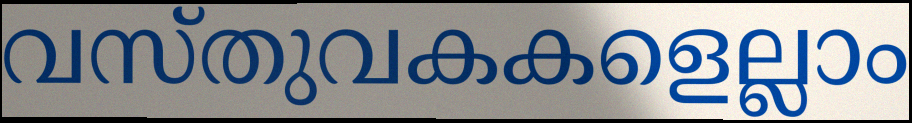
വസ്തുവകകളെല്ലാം